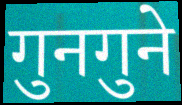
गुनगुने